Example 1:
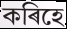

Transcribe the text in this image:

কৰিহে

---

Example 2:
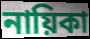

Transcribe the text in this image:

নায়িকা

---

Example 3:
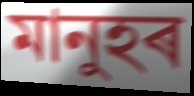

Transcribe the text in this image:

মানুহৰ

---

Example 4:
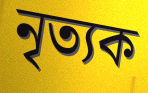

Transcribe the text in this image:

নৃত্যক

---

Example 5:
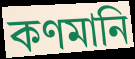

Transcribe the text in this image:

কণমানি